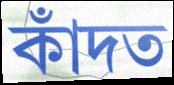
কাঁদত